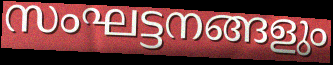
സംഘട്ടനങ്ങളും